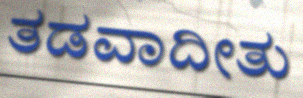
ತಡವಾದೀತು